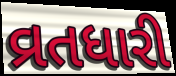
વ્રતધારી